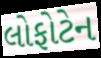
લોફોટેન